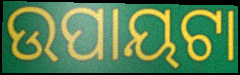
ଉପାୟଟା